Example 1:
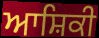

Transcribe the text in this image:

ਆਸ਼ਿਕੀ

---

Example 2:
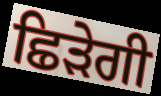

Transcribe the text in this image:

ਛਿੜੇਗੀ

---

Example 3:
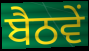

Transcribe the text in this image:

ਬੈਠਵੇਂ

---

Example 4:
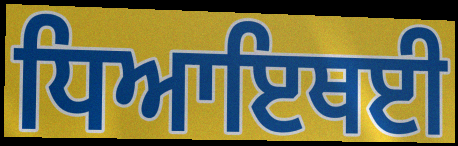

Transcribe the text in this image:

ਧਿਆਇਥਈ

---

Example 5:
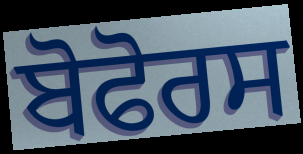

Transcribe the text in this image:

ਬੋਫੋਰਸ